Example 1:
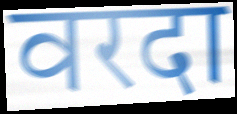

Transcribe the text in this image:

वरदा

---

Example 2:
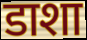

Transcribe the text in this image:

डाशा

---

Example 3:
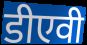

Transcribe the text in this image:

डीएवी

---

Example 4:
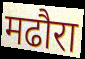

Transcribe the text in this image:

मढौरा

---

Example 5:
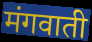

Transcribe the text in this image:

मंगवाती